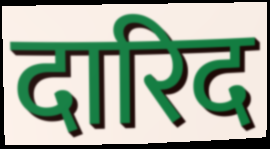
दारिद